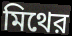
মিথের